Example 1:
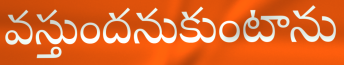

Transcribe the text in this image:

వస్తుందనుకుంటాను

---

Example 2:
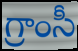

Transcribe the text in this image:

గ్రాంసీ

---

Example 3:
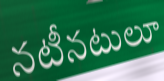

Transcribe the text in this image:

నటీనటులూ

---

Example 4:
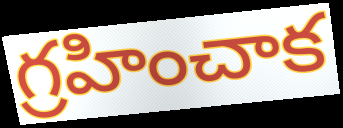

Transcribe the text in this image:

గ్రహించాక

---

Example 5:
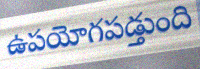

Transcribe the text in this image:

ఉపయోగపడ్తుంది